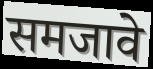
समजावे